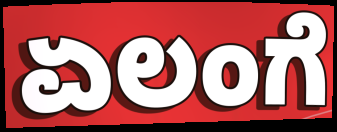
ಏಲಂಗೆ